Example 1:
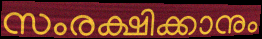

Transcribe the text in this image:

സംരക്ഷിക്കാനും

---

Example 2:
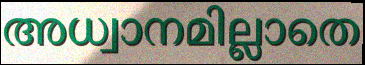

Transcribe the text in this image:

അധ്വാനമില്ലാതെ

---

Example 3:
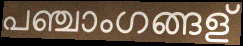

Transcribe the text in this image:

പഞ്ചാംഗങ്ങള്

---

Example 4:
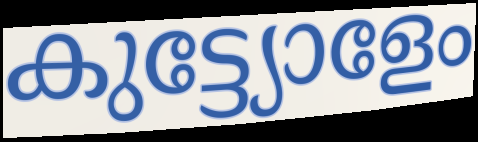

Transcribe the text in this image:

കുട്ട്യോളേം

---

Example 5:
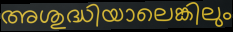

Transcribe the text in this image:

അശുദ്ധിയാലെങ്കിലും